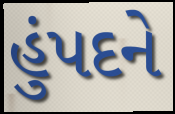
હુંપદને